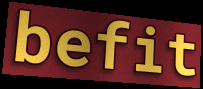
befit